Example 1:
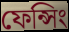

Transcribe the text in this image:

ফেন্সিং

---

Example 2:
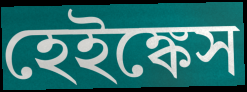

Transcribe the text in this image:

হেইঙ্কেস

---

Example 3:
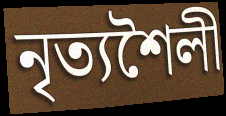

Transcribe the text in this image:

নৃত্যশৈলী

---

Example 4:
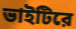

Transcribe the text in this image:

ভাইটিরে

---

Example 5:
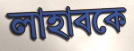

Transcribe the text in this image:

লাহাবকে